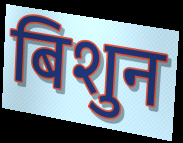
बिशुन